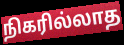
நிகரில்லாத